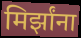
मिर्झांना